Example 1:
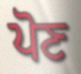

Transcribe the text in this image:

ਪੋਣ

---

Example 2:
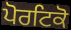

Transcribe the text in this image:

ਪੋਰਟਿਕੋ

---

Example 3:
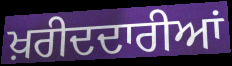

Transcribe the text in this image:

ਖ਼ਰੀਦਦਾਰੀਆਂ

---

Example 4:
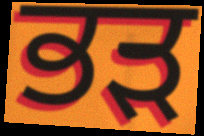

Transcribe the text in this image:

ਭੜ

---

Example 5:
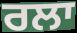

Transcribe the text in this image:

ਰਲਾ